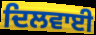
ਦਿਲਵਾਈ